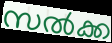
സൽക്ക